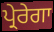
ਪ੍ਰੇਰੇਗਾ